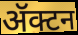
ॲक्टन